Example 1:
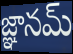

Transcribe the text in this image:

జ్ఞానమ్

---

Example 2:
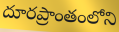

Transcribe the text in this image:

దూరప్రాంతంలోని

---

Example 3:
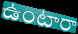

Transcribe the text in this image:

ఉంటారా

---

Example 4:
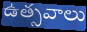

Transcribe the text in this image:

ఉత్సవాలు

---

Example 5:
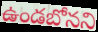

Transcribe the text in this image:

ఉండబోనని